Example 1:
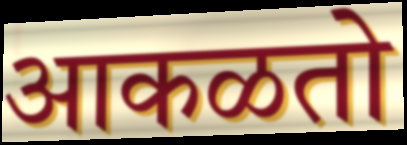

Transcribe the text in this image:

आकळतो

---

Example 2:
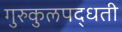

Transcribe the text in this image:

गुरुकुलपद्धती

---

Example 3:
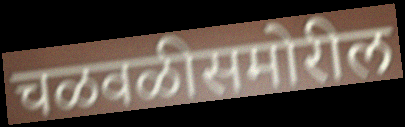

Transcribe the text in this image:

चळवळीसमोरील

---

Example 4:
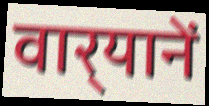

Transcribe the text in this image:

वार्‍यानें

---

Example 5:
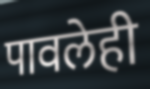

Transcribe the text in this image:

पावलेही